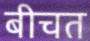
बीचत